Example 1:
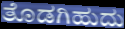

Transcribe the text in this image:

ತೊಡಗಿಹುದು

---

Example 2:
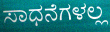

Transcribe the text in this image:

ಸಾಧನೆಗಳಲ್ಲ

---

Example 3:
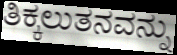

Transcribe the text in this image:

ತಿಕ್ಕಲುತನವನ್ನು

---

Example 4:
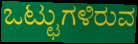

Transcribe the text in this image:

ಒಟ್ಟುಗಳಿರುವ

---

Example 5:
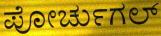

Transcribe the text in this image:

ಪೋರ್ಚುಗಲ್